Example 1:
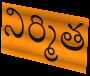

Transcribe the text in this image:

నిర్మిత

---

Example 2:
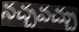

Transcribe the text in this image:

నచ్చవచ్చు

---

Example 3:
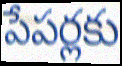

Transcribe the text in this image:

పేపర్లకు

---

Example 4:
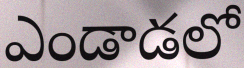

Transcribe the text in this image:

ఎండాడలో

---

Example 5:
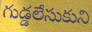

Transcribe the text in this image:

గుడ్డలేసుకుని